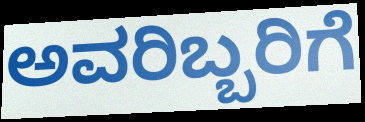
ಅವರಿಬ್ಬರಿಗೆ